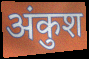
अंकुश